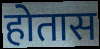
होतास